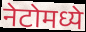
नेटोमध्ये